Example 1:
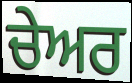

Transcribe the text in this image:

ਚੇਅਰ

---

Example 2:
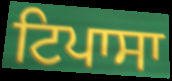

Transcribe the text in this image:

ਟਿਪਾਸਾ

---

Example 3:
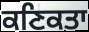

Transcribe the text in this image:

ਕਣਿਕਤਾ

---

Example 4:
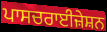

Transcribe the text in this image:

ਪਾਸਚਰਾਈਜ਼ੇਸ਼ਨ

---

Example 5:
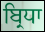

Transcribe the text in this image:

ਬ੍ਰਿਧਾ